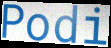
Podi